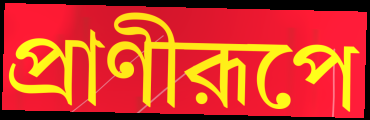
প্রাণীরূপে